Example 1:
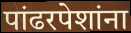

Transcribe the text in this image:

पांढरपेशांना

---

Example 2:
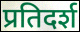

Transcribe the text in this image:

प्रतिदर्श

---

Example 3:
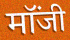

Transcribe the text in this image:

मॉंजी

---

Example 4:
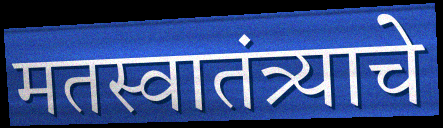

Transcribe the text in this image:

मतस्वातंत्र्याचे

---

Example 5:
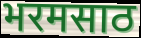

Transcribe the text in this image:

भरमसाठ